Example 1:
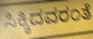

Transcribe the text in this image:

ಸಿಕ್ಕಿದವರಂತೆ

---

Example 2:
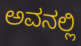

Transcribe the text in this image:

ಅವನಲ್ಲಿ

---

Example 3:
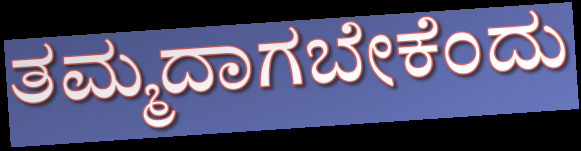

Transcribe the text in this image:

ತಮ್ಮದಾಗಬೇಕೆಂದು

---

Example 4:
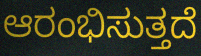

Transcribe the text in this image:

ಆರಂಭಿಸುತ್ತದೆ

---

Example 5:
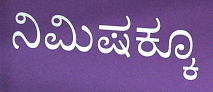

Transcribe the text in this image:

ನಿಮಿಷಕ್ಕೂ